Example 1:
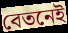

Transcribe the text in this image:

বেতনেই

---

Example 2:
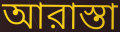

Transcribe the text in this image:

আরাস্তা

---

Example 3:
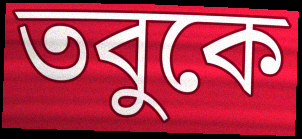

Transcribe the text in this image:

তবুকে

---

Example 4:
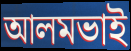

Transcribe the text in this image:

আলমভাই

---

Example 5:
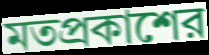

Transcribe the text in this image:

মতপ্রকাশের